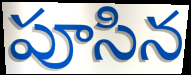
పూసిన